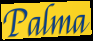
Palma